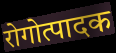
रोगोत्पादक